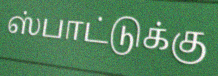
ஸ்பாட்டுக்கு